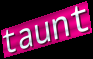
taunt